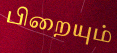
பிறையும்